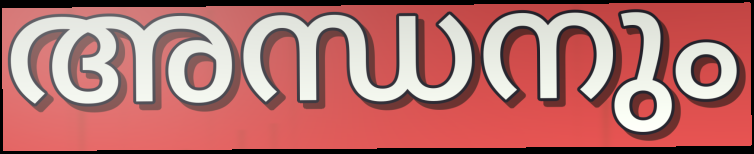
അന്ധനും